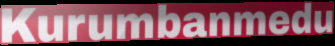
Kurumbanmedu